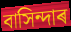
বাসিন্দাৰ